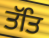
ਤੱਤਿ